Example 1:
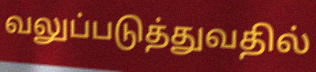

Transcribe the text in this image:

வலுப்படுத்துவதில்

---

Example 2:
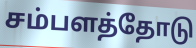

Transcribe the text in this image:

சம்பளத்தோடு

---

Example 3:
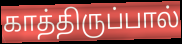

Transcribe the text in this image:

காத்திருப்பால்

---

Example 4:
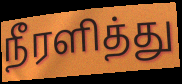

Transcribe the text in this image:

நீரளித்து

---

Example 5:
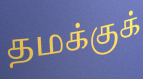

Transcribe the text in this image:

தமக்குக்